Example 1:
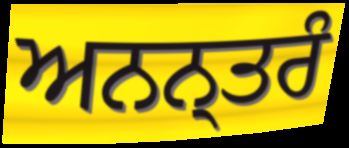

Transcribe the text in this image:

ਅਨਨ੍ਤਰੰ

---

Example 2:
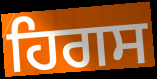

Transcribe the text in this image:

ਹਿਗਸ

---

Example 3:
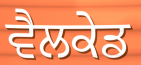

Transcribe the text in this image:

ਵੈਲਕੇਡ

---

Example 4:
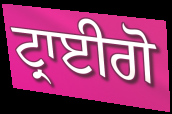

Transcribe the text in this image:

ਟ੍ਰਾਈਗੋ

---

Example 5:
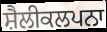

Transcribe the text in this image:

ਸ਼ੈਲੀਕਲਪਨਾ